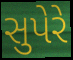
સુપેરે